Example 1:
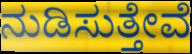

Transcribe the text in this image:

ನುಡಿಸುತ್ತೇವೆ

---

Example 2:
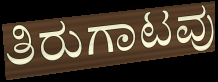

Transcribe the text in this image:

ತಿರುಗಾಟವು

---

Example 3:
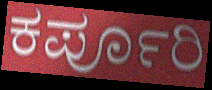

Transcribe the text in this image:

ಕರ್ಪೂರಿ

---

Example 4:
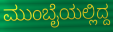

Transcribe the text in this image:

ಮುಂಬೈಯಲ್ಲಿದ್ದ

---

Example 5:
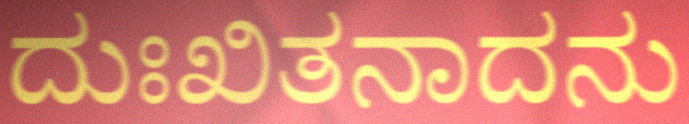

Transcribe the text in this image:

ದುಃಖಿತನಾದನು